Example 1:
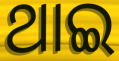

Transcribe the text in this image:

ଥାଇ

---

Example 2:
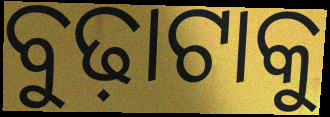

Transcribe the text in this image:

ବୁଢ଼ାଟାକୁ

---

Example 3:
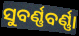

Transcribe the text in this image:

ସୁବର୍ଣ୍ଣବର୍ଣ୍ଣା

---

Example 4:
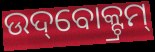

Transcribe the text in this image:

ଉଦ୍‌ବୋକ୍ଟ୍ରମ୍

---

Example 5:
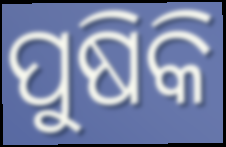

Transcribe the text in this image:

ପୁଷିକି